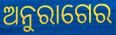
ଅନୁରାଗେର